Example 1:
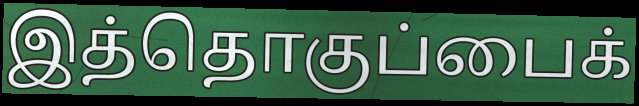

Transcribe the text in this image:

இத்தொகுப்பைக்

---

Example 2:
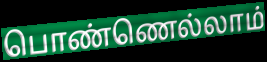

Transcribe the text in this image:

பொண்ணெல்லாம்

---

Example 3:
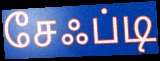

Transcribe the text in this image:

சேஃப்டி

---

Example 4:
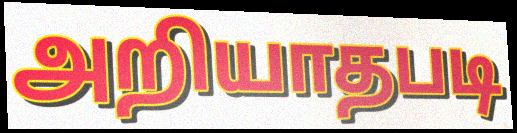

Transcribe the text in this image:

அறியாதபடி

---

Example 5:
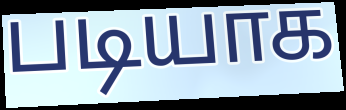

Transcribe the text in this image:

படியாக